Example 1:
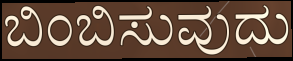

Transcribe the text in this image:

ಬಿಂಬಿಸುವುದು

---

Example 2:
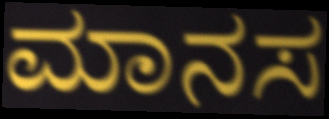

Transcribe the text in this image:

ಮಾನಸ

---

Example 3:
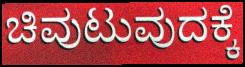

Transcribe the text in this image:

ಚಿವುಟುವುದಕ್ಕೆ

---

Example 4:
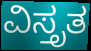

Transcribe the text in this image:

ವಿಸ್ತೃತ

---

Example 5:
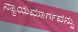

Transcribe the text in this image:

ನ್ಯಾಯಮಾರ್ಗವನ್ನು